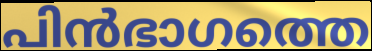
പിൻഭാഗത്തെ